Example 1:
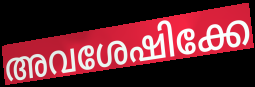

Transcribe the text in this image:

അവശേഷിക്കേ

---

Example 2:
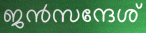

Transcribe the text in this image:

ജൻസന്ദേശ്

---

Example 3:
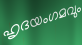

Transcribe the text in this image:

ഹൃദയംഗമവും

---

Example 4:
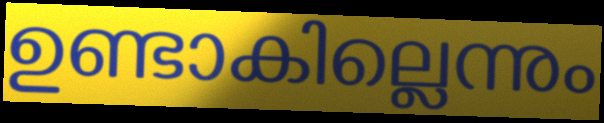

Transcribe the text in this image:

ഉണ്ടാകില്ലെന്നും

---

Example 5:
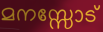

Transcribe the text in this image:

മനസ്സോട്